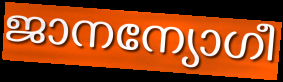
ജാനന്യോഗീ